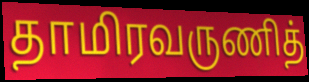
தாமிரவருணித்